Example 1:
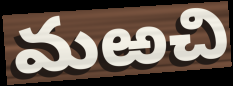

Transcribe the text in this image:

మఱచి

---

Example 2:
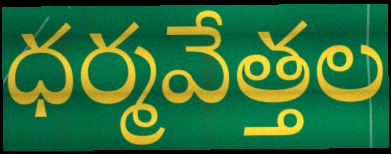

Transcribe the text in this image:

ధర్మవేత్తల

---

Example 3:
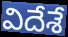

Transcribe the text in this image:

విదేశే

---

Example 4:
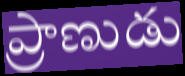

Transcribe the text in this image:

ప్రాణుడు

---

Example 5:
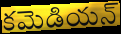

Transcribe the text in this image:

కమెడియన్